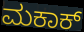
ಮಕಾಕ್